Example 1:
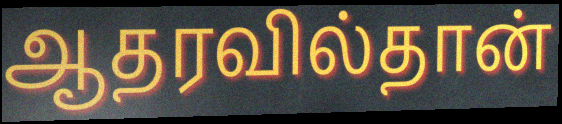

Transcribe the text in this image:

ஆதரவில்தான்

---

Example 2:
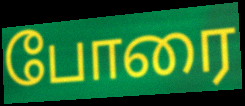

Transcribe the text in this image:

போரை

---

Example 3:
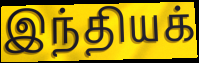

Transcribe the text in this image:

இந்தியக்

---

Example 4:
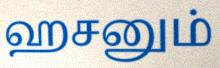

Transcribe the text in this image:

ஹசனும்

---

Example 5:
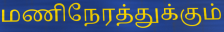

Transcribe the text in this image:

மணிநேரத்துக்கும்